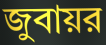
জুবায়র